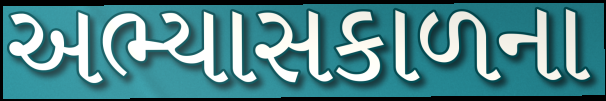
અભ્યાસકાળના